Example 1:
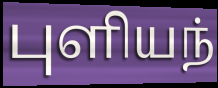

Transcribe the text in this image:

புளியந்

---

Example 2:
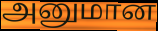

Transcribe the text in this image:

அனுமான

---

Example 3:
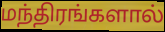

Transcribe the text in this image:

மந்திரங்களால்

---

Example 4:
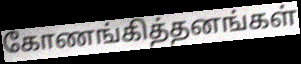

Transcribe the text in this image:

கோணங்கித்தனங்கள்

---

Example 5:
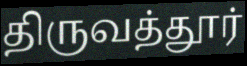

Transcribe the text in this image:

திருவத்தூர்